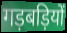
गड़बड़ियों